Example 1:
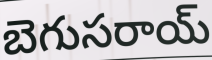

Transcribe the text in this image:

బెగుసరాయ్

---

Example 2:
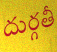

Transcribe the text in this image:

దుర్గతీ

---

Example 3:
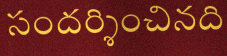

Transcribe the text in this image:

సందర్శించినది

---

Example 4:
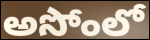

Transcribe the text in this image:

అసోంలో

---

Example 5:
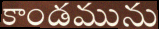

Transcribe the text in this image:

కాండమును